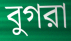
বুগরা